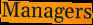
Managers